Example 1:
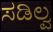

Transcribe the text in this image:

ಸಡಿಲ್ವ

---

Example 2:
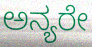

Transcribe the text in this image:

ಅನ್ಯರೇ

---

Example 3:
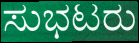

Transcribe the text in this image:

ಸುಭಟರು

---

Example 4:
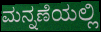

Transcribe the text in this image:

ಮನ್ನಣೆಯಲ್ಲಿ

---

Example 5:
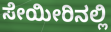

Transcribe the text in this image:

ಸೇಯೀರಿನಲ್ಲಿ